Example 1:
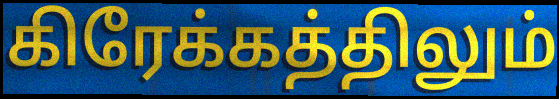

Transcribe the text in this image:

கிரேக்கத்திலும்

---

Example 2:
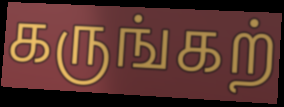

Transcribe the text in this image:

கருங்கற்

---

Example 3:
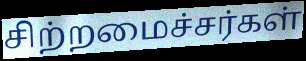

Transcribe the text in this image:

சிற்றமைச்சர்கள்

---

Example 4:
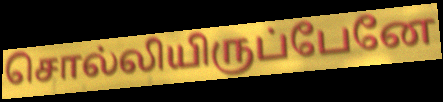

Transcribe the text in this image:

சொல்லியிருப்பேனே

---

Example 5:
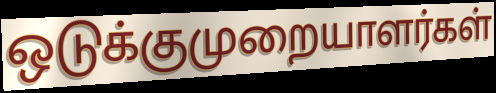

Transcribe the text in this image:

ஒடுக்குமுறையாளர்கள்